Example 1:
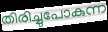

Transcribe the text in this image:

തിരിച്ചുപോകുന്ന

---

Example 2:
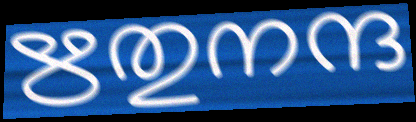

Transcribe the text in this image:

ഋതുനന്ദ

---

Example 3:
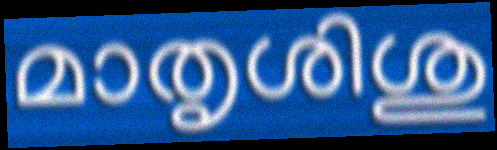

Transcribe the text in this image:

മാതൃശിശു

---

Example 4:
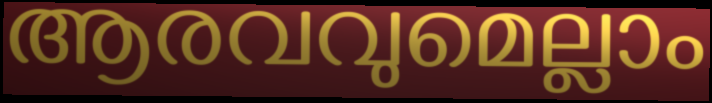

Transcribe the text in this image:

ആരവവുമെല്ലാം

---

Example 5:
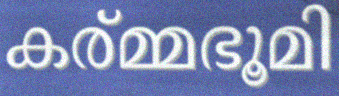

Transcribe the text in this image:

കര്മ്മഭൂമി